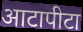
आटापीटा